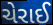
ચેરાઈ